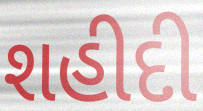
શહીદી